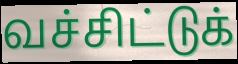
வச்சிட்டுக்